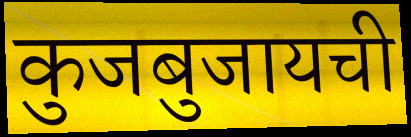
कुजबुजायची